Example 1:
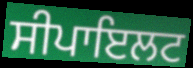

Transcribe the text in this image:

ਸੀਪਾਇਲਟ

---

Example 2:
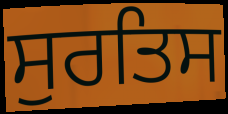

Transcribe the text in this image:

ਸੁਰਤਿਸ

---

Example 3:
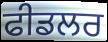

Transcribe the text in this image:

ਫੀਡਲਰ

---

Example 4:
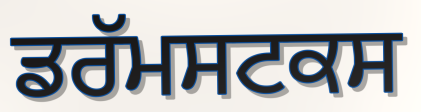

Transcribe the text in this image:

ਡਰੱਮਸਟਕਸ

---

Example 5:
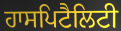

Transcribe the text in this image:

ਹਾਸਪਿਟੈਲਿਟੀ